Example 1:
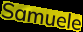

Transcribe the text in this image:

Samuele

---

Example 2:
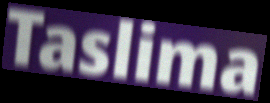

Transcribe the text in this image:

Taslima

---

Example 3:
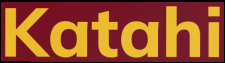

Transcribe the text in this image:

Katahi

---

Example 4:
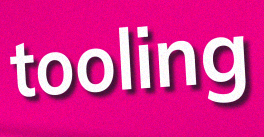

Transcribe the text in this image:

tooling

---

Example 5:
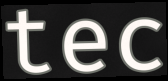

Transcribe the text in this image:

tec